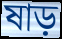
ষাড়